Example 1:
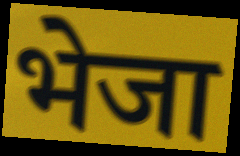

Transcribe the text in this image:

भेजा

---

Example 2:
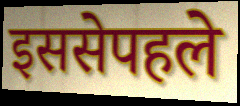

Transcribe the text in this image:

इससेपहले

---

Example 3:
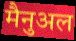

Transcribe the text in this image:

मैनुअल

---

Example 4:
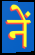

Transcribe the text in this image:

नें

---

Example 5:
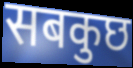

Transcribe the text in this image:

सबकुछ